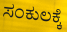
ಸಂಕುಲಕ್ಕೆ